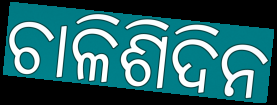
ଚାଳିଶିଦିନ